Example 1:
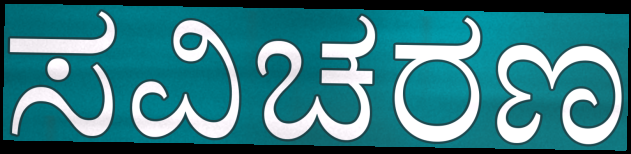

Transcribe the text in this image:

ಸವಿಚರಣ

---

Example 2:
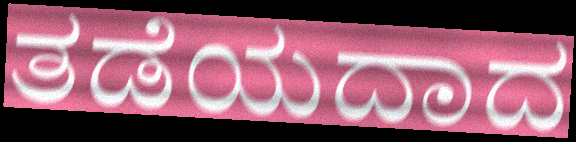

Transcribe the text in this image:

ತಡೆಯದಾದ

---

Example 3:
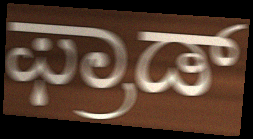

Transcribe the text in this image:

ಫ್ರಾಡ್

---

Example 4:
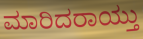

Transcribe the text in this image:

ಮಾರಿದರಾಯ್ತು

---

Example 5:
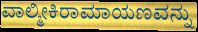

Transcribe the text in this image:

ವಾಲ್ಮೀಕಿರಾಮಾಯಣವನ್ನು